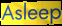
Asleep